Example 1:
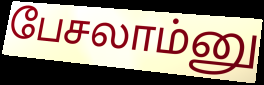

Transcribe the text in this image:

பேசலாம்னு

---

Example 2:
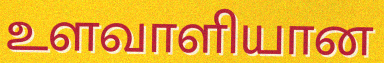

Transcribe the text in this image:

உளவாளியான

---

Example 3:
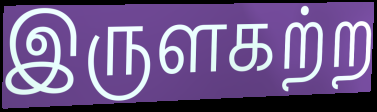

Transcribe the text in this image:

இருளகற்ற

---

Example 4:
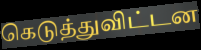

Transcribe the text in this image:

கெடுத்துவிட்டன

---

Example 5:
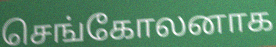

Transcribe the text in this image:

செங்கோலனாக